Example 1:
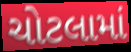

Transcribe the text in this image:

ચોટલામાં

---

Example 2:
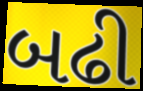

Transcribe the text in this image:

બઢી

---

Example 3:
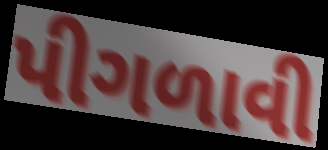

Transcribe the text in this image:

પીગળાવી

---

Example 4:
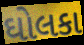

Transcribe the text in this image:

ઘોલકા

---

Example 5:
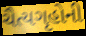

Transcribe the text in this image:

ચૈત્યગૃહોની